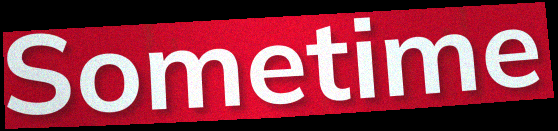
Sometime